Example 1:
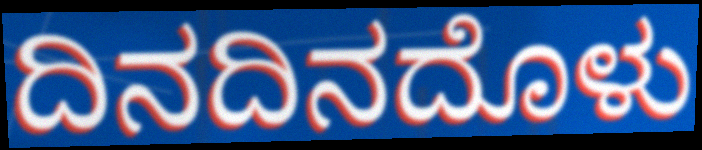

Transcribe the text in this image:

ದಿನದಿನದೊಳು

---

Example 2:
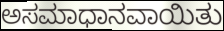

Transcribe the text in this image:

ಅಸಮಾಧಾನವಾಯಿತು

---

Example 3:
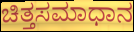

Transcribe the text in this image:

ಚಿತ್ತಸಮಾಧಾನ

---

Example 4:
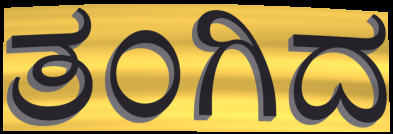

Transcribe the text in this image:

ತಂಗಿದ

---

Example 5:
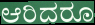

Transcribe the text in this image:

ಆರಿದರೂ